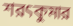
শরৎকুমার